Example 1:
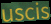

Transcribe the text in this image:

uscis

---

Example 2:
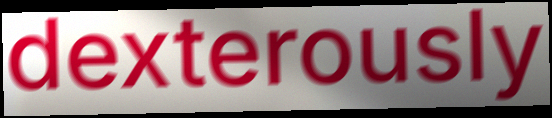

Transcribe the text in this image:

dexterously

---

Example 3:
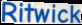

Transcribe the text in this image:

Ritwick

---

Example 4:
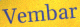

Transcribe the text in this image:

Vembar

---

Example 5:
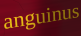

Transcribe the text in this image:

anguinus